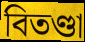
বিতণ্ডা